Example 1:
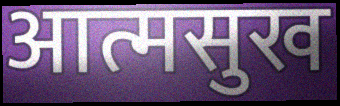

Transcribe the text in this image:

आत्मसुख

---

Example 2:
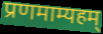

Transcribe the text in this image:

प्रणमाम्यहम्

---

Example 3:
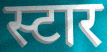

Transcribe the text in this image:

स्‍टार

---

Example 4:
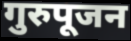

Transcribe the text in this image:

गुरुपूजन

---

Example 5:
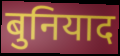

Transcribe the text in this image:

बुनियाद